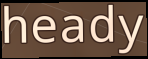
heady